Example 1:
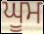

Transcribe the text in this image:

ਘੂਮ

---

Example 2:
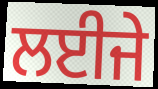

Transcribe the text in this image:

ਲਈਜੇ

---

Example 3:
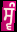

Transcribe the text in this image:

ਸ੍ਵੰ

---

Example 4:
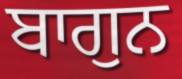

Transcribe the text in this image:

ਬਾਗੁਨ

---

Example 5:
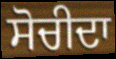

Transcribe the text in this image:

ਸੋਚੀਦਾ